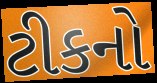
ટીકનો